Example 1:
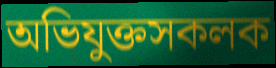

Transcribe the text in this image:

অভিযুক্তসকলক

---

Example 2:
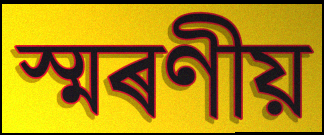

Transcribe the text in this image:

স্মৰণীয়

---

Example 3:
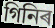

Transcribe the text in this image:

গিনিৰ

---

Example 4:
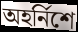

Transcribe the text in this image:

অহৰ্নিশে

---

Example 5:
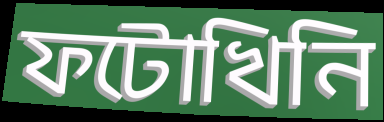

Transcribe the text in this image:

ফটোখিনি